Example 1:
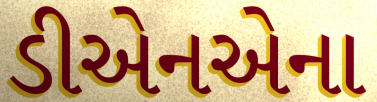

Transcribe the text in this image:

ડીએનએના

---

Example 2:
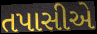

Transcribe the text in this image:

તપાસીએ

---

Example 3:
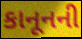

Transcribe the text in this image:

કાનૂનની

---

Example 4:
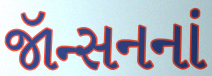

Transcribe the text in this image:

જૉન્સનનાં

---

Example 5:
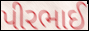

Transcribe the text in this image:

પીરભાઈ